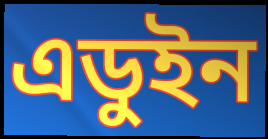
এডুইন